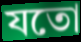
যতো